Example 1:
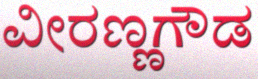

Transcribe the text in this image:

ವೀರಣ್ಣಗೌಡ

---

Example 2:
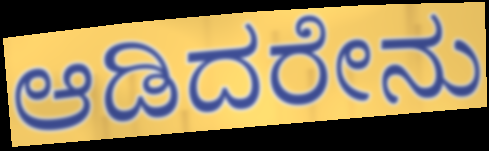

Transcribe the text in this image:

ಆಡಿದರೇನು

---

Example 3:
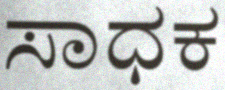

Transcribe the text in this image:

ಸಾಧಕ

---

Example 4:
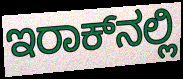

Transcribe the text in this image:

ಇರಾಕ್‌ನಲ್ಲಿ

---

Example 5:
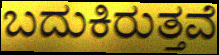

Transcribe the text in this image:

ಬದುಕಿರುತ್ತವೆ